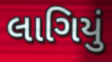
લાગિયું